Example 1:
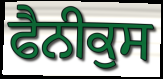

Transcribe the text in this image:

ਫੈਨੀਕੁਸ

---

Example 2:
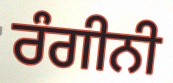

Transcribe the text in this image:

ਰੰਗੀਨੀ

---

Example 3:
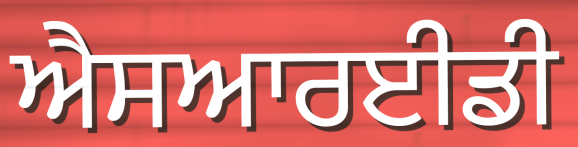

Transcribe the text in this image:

ਐਸਆਰਈਡੀ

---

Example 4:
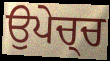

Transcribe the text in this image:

ਉਪੇਚ੍ਚ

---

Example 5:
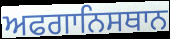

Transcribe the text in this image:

ਅਫਗਾਨਿਸਥਾਨ